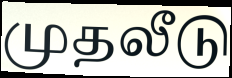
முதலீடு